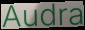
Audra